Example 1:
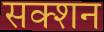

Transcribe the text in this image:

सक्शन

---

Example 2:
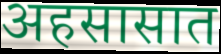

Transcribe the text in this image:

अहसासात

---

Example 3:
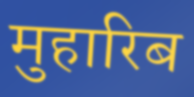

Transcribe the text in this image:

मुहारिब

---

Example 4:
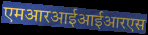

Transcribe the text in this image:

एमआरआईआईआरएस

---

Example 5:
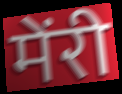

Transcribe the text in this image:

मेंरी